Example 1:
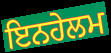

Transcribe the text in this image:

ਇਨਹੇਲਮ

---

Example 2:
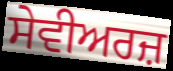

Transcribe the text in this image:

ਸੇਵੀਅਰਜ਼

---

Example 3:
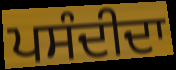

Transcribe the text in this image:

ਪਸੰਦੀਦਾ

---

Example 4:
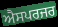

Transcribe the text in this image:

ਐਸਪਰਜਰ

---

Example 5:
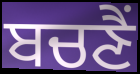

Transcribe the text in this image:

ਬਚਣੈਂ